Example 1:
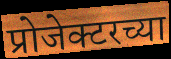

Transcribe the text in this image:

प्रोजेक्टरच्या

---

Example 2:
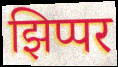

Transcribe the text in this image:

झिप्पर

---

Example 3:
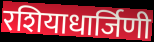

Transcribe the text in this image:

रशियाधार्जिणी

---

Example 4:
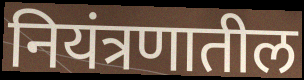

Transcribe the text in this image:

नियंत्रणातील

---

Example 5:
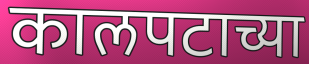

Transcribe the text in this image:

कालपटाच्या